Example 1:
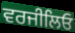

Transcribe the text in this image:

ਵਰਜੀਲਿਓ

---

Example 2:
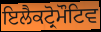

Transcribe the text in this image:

ਇਲੈਕਟ੍ਰੋਮੌਟਿਵ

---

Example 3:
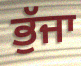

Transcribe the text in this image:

ਭੁੱਜਾ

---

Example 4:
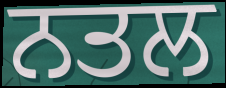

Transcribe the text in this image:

ਨਤਲ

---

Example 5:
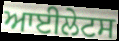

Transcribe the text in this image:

ਆਈਲੇਟਸ